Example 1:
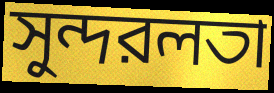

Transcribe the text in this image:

সুন্দরলতা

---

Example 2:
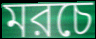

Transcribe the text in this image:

মরচে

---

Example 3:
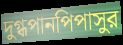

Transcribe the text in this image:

দুগ্ধপানপিপাসুর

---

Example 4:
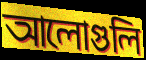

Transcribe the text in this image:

আলোগুলি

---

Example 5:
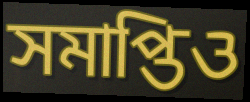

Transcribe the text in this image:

সমাপ্তিও